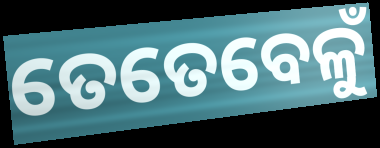
ତେତେବେଳୁଁ